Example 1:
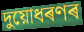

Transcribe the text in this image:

দুয়োধৰণৰ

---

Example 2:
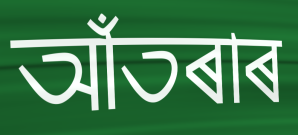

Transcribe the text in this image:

আঁতৰাৰ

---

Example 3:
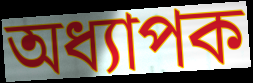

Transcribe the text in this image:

অধ্যাপক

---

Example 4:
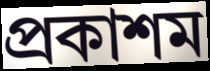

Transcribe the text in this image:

প্ৰকাশম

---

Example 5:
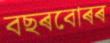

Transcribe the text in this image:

বছৰবোৰৰ